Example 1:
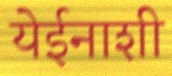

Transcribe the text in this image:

येईनाशी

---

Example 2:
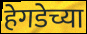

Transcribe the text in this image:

हेगडेच्या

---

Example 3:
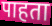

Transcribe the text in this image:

पाहता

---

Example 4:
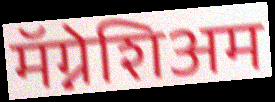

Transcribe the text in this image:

मॅग्नेशिअम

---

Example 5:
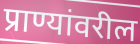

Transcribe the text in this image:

प्राण्यांवरील